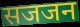
सजजन